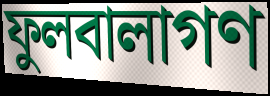
ফুলবালাগণ